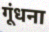
गूंधना